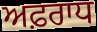
ਅਫ਼ਰਾਧ